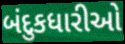
બંદુકધારીઓ